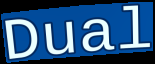
Dual